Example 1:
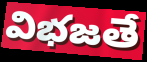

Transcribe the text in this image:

విభజతే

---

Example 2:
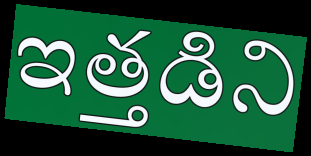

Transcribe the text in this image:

ఇత్తడిని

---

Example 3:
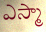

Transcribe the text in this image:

ఎస్మా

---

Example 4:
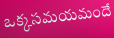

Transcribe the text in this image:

ఒక్కసమయమందే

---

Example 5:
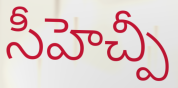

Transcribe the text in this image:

సీహెచ్పీ